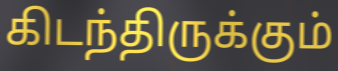
கிடந்திருக்கும்